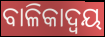
ବାଳିକାଦ୍ୱୟ